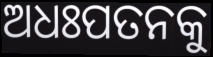
ଅଧଃପତନକୁ